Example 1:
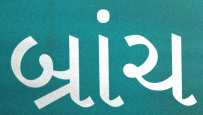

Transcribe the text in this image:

બ્રાંચ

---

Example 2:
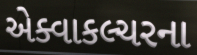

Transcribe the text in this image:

એક્વાકલ્ચરના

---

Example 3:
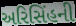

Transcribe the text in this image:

અરિસિંહની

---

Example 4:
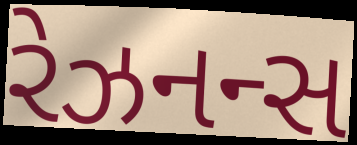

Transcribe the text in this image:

રેઝનન્સ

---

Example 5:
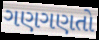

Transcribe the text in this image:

ગણગણતો